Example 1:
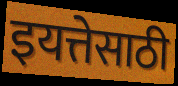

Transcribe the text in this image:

इयत्तेसाठी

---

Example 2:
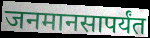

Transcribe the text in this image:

जनमानसापर्यंत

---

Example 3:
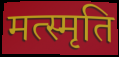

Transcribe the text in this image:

मत्स्मृति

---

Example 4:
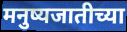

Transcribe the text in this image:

मनुष्यजातीच्या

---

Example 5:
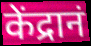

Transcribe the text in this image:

केंद्रानं